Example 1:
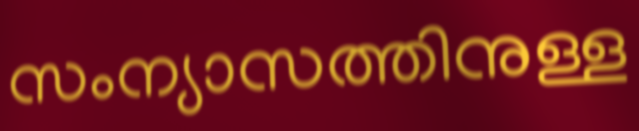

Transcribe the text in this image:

സംന്യാസത്തിനുള്ള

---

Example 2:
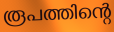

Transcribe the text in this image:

രൂപത്തിന്റെ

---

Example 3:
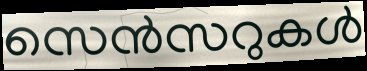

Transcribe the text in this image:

സെൻസറുകൾ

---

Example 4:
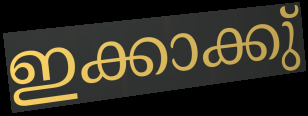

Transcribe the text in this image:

ഇക്കാക്കു്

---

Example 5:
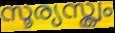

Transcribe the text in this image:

സൂര്യസ്ത്വം